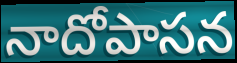
నాదోపాసన